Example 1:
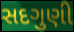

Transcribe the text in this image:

સદગુણી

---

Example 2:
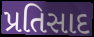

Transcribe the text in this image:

પ્રતિસાદ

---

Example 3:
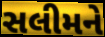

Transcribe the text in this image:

સલીમને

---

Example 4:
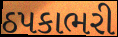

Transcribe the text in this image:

ઠપકાભરી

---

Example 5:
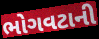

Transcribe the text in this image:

ભોગવટાની